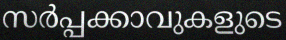
സർപ്പക്കാവുകളുടെ